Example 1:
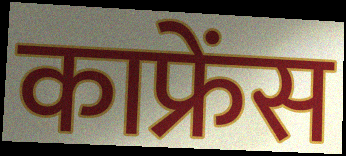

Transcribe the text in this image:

काफ्रेंस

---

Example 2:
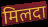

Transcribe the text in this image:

मिलदा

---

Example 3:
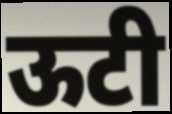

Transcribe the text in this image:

ऊटी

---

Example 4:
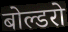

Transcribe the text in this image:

बोल्डरो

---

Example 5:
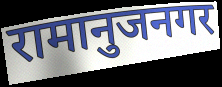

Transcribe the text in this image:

रामानुजनगर